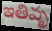
ఇతివృ